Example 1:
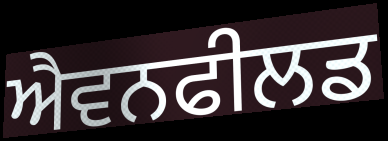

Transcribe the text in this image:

ਐਵਨਫੀਲਡ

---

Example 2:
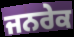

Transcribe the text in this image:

ਜਨਰੇਕ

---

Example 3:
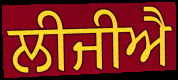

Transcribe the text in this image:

ਲੀਜੀਐ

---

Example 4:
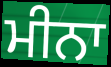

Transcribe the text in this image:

ਮੀਨਾ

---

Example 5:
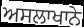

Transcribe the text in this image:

ਅਸਲਾਖਾਨੇ